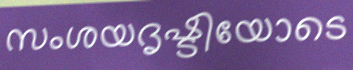
സംശയദൃഷ്ടിയോടെ